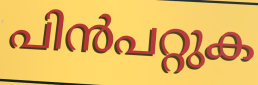
പിൻപറ്റുക